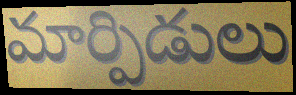
మార్పిడులు